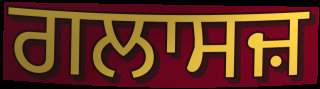
ਗਲਾਸਜ਼